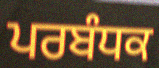
ਪਰਬੰਧਕ